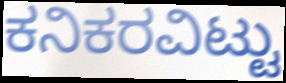
ಕನಿಕರವಿಟ್ಟು